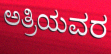
ಅತ್ರಿಯವರ